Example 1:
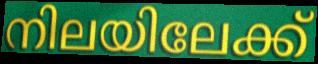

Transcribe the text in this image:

നിലയിലേക്ക്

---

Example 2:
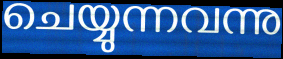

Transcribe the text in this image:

ചെയ്യുന്നവന്നു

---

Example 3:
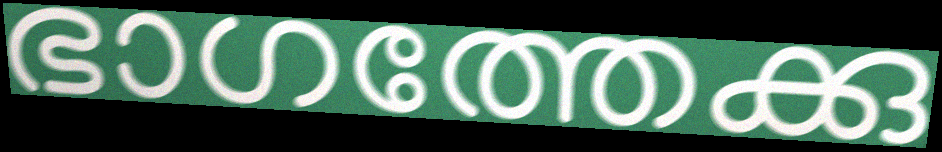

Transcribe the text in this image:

ഭാഗത്തേക്കു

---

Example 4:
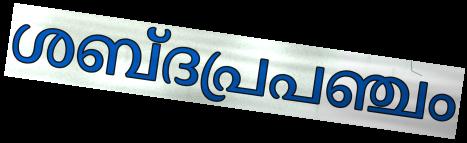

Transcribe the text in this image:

ശബ്ദപ്രപഞ്ചം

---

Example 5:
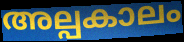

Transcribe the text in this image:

അല്പകാലം